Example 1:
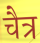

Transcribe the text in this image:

चैत्र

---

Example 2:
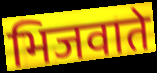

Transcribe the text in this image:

भिजवाते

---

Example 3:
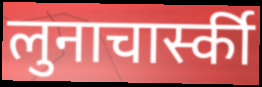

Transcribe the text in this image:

लुनाचार्स्की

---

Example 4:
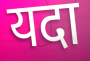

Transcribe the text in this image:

यदा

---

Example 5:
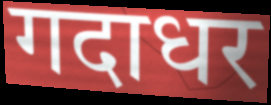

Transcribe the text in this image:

गदाधर